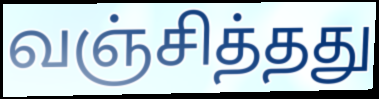
வஞ்சித்தது